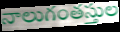
నాలుగంతస్తుల